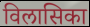
विलासिका